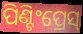
ପିଣ୍ଟିଂପ୍ରେସ୍